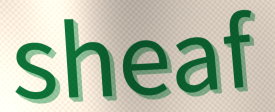
sheaf